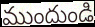
ముందుండి